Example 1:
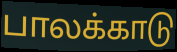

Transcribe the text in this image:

பாலக்காடு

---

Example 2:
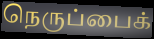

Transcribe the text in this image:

நெருப்பைக்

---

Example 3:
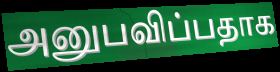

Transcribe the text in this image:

அனுபவிப்பதாக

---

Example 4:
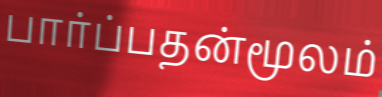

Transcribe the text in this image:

பார்ப்பதன்மூலம்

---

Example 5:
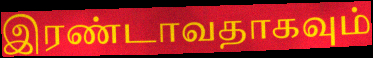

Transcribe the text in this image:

இரண்டாவதாகவும்